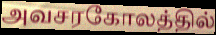
அவசரகோலத்தில்